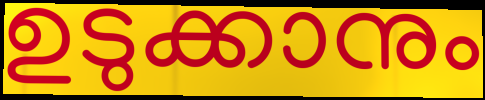
ഉടുക്കാനും